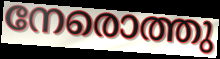
നേരൊത്തു